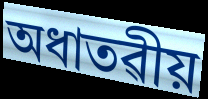
অধাতৱীয়